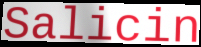
Salicin